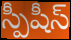
స్పీషీస్